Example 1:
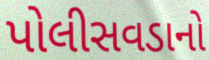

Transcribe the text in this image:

પોલીસવડાનો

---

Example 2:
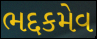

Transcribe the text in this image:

ભદ્દકમેવ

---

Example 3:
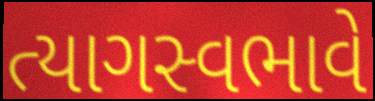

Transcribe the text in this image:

ત્યાગસ્વભાવે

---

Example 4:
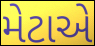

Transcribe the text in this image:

મેટાએ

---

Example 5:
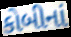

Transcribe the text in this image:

કોબીનાં